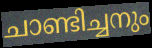
ചാണ്ടിച്ചനും